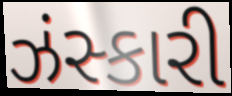
ઝંસ્કારી